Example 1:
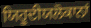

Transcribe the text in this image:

ਯਿਹੂਦੀਯਲੋਕਾਨਾਂ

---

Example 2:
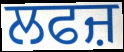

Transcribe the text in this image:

ਲਫਜ਼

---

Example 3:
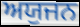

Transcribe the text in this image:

ਅਯੁਜਨ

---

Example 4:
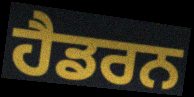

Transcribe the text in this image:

ਹੈਡਰਨ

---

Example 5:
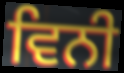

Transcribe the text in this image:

ਵਿਨੀ